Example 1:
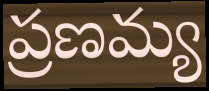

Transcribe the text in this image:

ప్రణమ్య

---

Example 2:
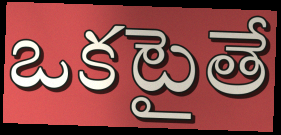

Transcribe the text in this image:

ఒకటైతే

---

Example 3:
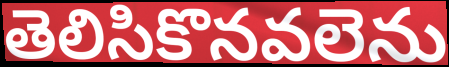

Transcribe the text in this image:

తెలిసికొనవలెను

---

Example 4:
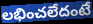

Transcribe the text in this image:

లభించలేదంటే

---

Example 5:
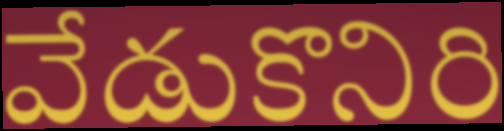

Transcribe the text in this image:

వేడుకొనిరి